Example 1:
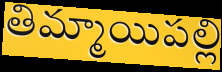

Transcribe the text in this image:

తిమ్మాయిపల్లి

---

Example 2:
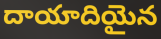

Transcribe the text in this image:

దాయాదియైన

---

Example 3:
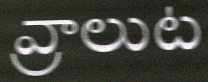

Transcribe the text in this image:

వ్రాలుట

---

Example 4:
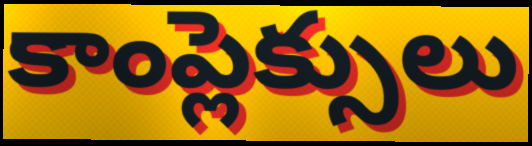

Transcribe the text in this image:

కాంప్లెక్సులు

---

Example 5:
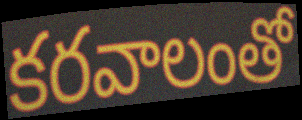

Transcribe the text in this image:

కరవాలంతో